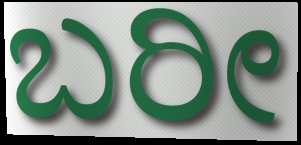
ಬರೀ